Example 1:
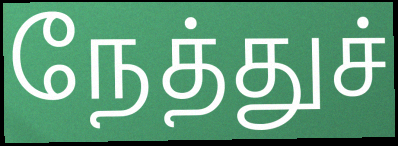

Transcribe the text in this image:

நேத்துச்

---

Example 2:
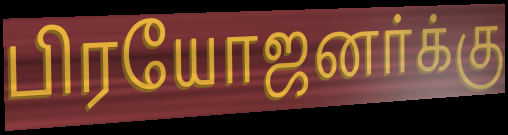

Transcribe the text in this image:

பிரயோஜனர்க்கு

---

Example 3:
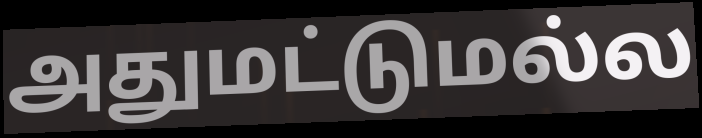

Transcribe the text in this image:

அதுமட்டுமல்ல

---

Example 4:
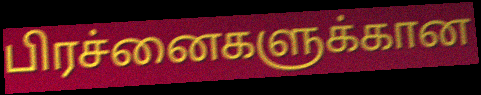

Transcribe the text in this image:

பிரச்னைகளுக்கான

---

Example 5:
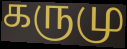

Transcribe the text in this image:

கருமு